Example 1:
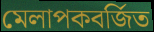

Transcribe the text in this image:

মেলাপকবর্জিত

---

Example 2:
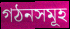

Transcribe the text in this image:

গঠনসমূহ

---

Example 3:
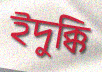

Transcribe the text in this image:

ইদুক্কি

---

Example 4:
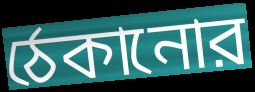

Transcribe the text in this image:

ঠেকানোর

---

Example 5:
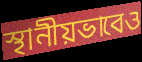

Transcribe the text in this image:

স্থানীয়ভাবেও